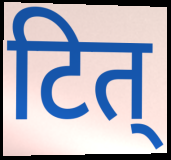
टित्